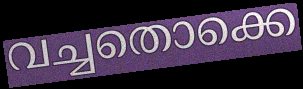
വച്ചതൊക്കെ